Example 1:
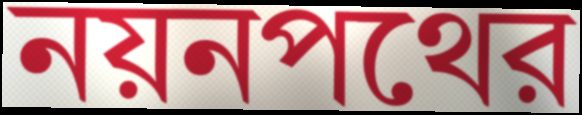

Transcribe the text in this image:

নয়নপথের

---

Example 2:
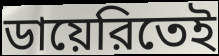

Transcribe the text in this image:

ডায়েরিতেই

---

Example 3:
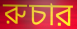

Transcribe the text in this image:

রুচার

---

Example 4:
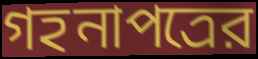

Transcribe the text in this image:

গহনাপত্রের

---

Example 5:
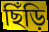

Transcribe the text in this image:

ছিঁড়ি